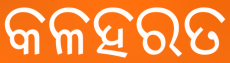
କଳହରତ